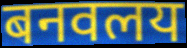
बनवलय